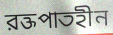
রক্তপাতহীন